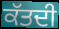
ਕੱਤਦੀ